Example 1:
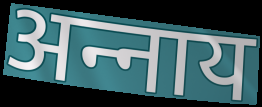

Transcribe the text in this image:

अन्नाय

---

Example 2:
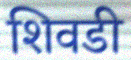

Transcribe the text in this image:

शिवडी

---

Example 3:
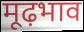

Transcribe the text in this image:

मूढ़भाव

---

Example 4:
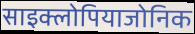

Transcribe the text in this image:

साइक्लोपियाजोनिक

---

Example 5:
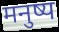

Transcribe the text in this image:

मनुष्य